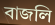
বাজলি